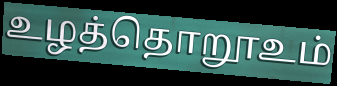
உழத்தொறூஉம்